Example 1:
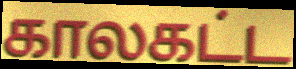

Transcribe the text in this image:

காலகட்ட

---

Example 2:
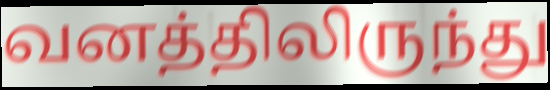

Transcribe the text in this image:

வனத்திலிருந்து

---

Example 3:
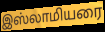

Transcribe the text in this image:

இஸ்லாமியரை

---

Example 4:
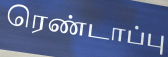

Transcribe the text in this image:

ரெண்டாப்பு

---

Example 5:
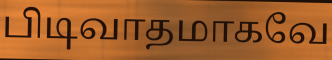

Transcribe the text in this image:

பிடிவாதமாகவே